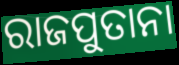
ରାଜପୁତାନା